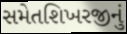
સમેતશિખરજીનું